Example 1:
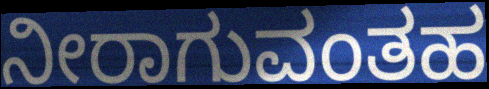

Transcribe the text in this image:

ನೀರಾಗುವಂತಹ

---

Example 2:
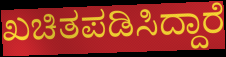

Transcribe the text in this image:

ಖಚಿತಪಡಿಸಿದ್ದಾರೆ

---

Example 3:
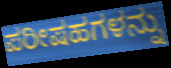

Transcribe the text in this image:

ಪರೀಷಹಗಳನ್ನು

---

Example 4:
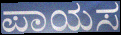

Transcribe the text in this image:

ಪಾಯಸ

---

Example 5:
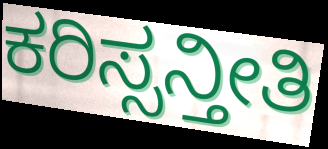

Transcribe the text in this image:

ಕರಿಸ್ಸನ್ತೀತಿ